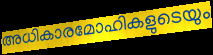
അധികാരമോഹികളുടെയും